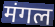
मंगल